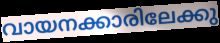
വായനക്കാരിലേക്കു